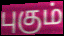
புகும்